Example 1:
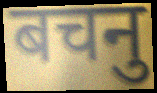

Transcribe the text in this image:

बचनु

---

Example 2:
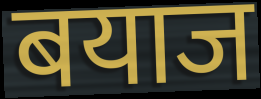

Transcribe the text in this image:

बयाज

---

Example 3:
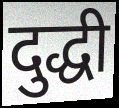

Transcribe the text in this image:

दुद्धी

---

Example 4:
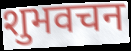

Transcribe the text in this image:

शुभवचन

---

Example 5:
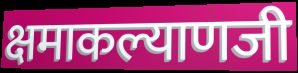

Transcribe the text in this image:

क्षमाकल्याणजी